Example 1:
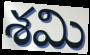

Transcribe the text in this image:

శమి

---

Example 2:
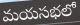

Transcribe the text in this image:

మయసభలో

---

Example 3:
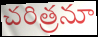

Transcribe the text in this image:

చరిత్రనూ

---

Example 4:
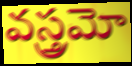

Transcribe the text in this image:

వస్త్రమో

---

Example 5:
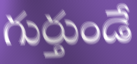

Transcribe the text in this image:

గుర్తుండే